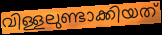
വിള്ളലുണ്ടാക്കിയത്